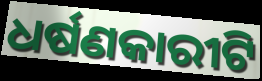
ଧର୍ଷଣକାରୀଟି